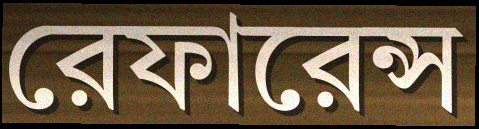
রেফারেন্স